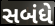
સબંધે